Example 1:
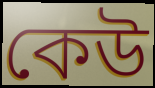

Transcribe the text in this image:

কেউ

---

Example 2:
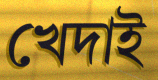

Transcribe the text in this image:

খেদাই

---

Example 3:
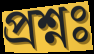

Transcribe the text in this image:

প্রশ্নঃ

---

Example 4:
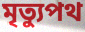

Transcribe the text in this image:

মৃত্যুপথ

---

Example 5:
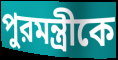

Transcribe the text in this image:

পুরমন্ত্রীকে